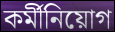
কর্মীনিয়োগ